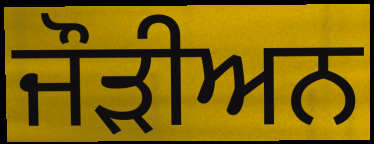
ਜੌੜੀਅਨ